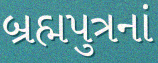
બ્રહ્મપુત્રનાં